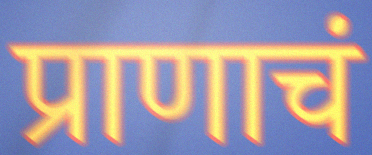
प्राणाचं